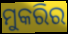
ମୁକରିର